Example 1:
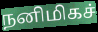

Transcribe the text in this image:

நனிமிகச்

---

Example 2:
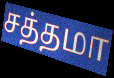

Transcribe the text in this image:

சத்தமா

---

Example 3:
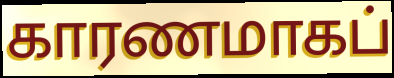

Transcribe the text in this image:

காரணமாகப்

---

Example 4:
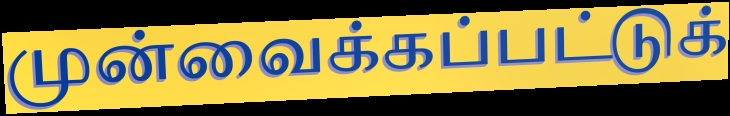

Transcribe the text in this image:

முன்வைக்கப்பட்டுக்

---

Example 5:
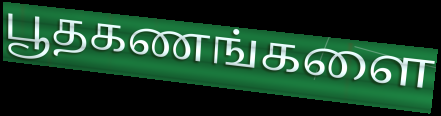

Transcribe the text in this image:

பூதகணங்களை